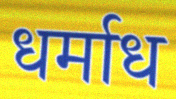
धर्माध